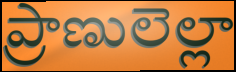
ప్రాణులెల్లా